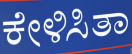
ಕೇಳಿಸಿತಾ